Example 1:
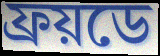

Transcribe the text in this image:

ফ্ৰয়ডে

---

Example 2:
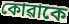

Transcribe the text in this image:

কোৱাকে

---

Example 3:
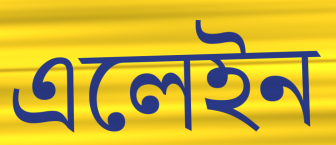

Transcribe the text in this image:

এলেইন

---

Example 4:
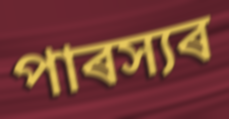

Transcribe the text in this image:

পাৰস্যৰ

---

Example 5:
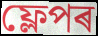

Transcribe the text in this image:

ফ্লেপৰ